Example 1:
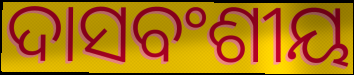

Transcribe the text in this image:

ଦାସବଂଶୀୟ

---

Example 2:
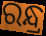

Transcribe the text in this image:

ରନ୍ଧ୍ର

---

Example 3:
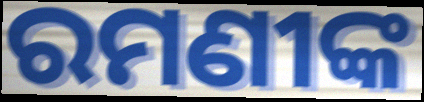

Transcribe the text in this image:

ରମଣୀଙ୍କ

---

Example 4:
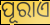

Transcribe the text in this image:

ପୂରାଏ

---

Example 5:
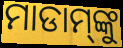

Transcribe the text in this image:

ମାଡାମ୍‌ଙ୍କୁ